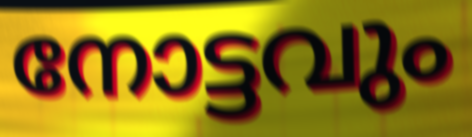
നോട്ടവും